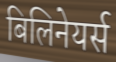
बिलिनेयर्स